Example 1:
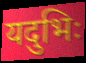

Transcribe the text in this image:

यदुभिः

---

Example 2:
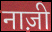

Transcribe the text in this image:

नाज़ी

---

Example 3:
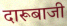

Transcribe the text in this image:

दारूबाजी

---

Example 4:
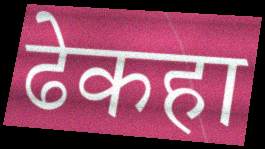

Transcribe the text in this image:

ढेकहा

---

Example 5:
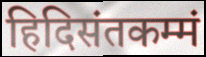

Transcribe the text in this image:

हिदिसंतकम्मं